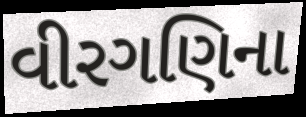
વીરગણિના